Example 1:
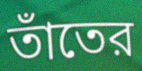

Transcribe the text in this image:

তাঁতের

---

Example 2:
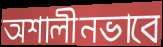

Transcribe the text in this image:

অশালীনভাবে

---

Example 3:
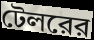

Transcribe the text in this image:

টেলরের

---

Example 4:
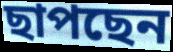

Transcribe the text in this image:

ছাপছেন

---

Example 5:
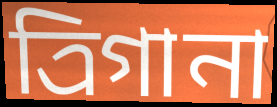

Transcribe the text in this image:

ত্রিগানা